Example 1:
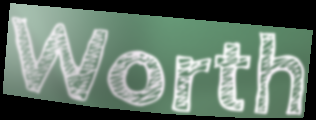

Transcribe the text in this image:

Worth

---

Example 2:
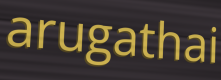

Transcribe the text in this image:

arugathai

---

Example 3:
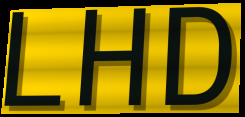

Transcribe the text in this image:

LHD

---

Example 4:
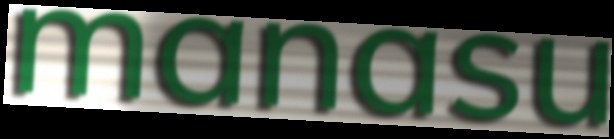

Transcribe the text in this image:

manasu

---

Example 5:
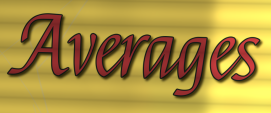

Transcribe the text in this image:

Averages